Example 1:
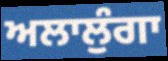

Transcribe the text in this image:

ਅਲਾਲੁੰਗਾ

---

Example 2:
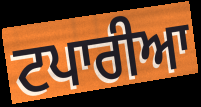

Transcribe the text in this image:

ਟਪਾਰੀਆ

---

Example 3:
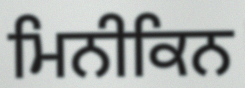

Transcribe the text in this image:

ਮਿਨੀਕਿਨ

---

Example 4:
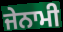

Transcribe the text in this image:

ਜੇਨਾਮੀ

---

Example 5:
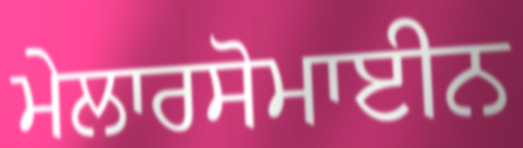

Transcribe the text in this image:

ਮੇਲਾਰਸੋਮਾਈਨ